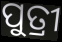
ପୁତ୍ରୀ